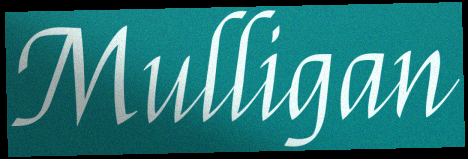
Mulligan